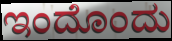
ಇಂದೊಂದು